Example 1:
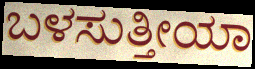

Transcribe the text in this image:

ಬಳಸುತ್ತೀಯಾ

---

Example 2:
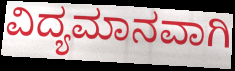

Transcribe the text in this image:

ವಿದ್ಯಮಾನವಾಗಿ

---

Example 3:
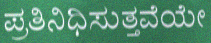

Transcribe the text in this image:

ಪ್ರತಿನಿಧಿಸುತ್ತವೆಯೇ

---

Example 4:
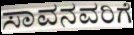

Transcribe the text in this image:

ಸಾವನವರಿಗೆ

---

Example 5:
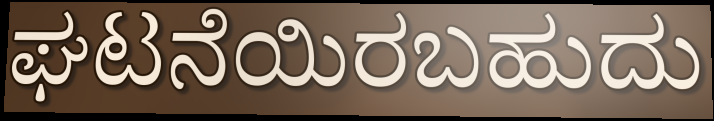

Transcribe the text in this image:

ಘಟನೆಯಿರಬಹುದು